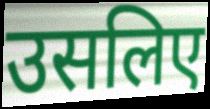
उसलिए